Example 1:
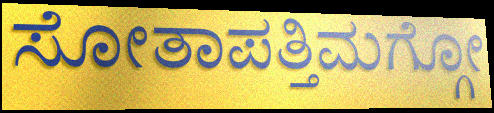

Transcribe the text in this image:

ಸೋತಾಪತ್ತಿಮಗ್ಗೋ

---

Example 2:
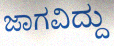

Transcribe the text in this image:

ಜಾಗವಿದ್ದು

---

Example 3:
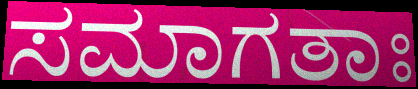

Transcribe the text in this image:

ಸಮಾಗತಾಃ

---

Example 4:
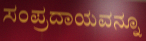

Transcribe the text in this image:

ಸಂಪ್ರದಾಯವನ್ನೂ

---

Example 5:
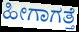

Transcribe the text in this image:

ಹೀಗಾಗತ್ತೆ